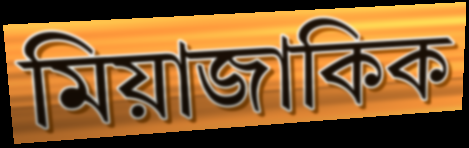
মিয়াজাকিক